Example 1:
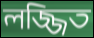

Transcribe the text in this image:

লজ্জিত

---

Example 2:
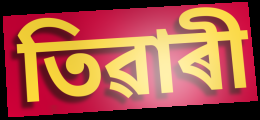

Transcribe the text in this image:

তিৱাৰী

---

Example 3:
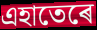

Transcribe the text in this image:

এহাতেৰে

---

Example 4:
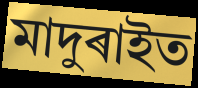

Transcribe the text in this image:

মাদুৰাইত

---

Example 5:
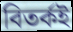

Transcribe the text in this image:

বিতৰ্কই